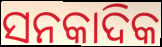
ସନକାଦିକ